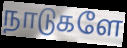
நாடுகளே